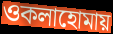
ওকলাহোমায়